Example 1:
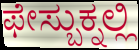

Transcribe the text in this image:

ಫೇಸ್ಬುಕ್ನಲ್ಲಿ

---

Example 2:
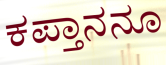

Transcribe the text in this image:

ಕಪ್ತಾನನೂ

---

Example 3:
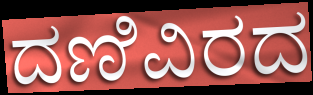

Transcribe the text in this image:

ದಣಿವಿರದ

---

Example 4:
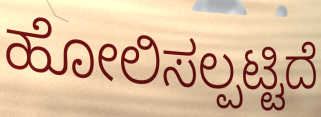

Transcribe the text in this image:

ಹೋಲಿಸಲ್ಪಟ್ಟಿದೆ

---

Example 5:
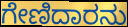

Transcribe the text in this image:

ಗೇಣಿದಾರನು